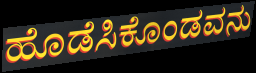
ಹೊಡೆಸಿಕೊಂಡವನು